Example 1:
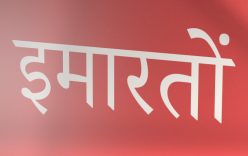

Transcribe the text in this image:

इमारतों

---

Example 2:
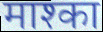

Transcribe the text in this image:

माश्का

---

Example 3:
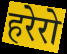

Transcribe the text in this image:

हरेरो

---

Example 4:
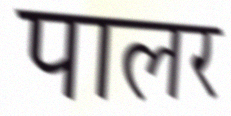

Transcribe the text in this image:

पालर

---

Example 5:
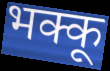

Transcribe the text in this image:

भक्कू